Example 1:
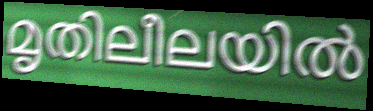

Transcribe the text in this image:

മൃതിലീലയിൽ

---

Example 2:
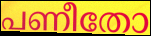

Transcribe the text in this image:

പണീതോ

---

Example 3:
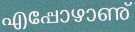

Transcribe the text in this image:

എപ്പോഴാണു്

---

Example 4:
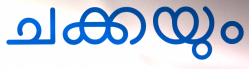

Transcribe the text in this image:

ചക്കയും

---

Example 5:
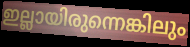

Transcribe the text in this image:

ഇല്ലായിരുന്നെങ്കിലും